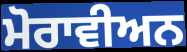
ਮੋਰਾਵੀਅਨ